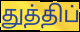
துத்திப்